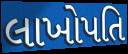
લાખોપતિ